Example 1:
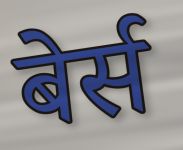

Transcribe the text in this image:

बेर्स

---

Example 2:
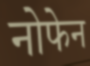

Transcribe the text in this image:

नोफेन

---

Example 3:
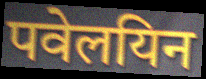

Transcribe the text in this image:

पवेलयिन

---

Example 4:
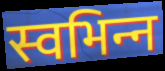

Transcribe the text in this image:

स्वभिन्न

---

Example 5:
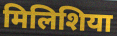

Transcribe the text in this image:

मिलिशिया